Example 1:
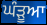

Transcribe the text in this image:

ਘੰੜੂਆ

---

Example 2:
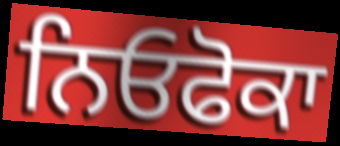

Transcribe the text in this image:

ਨਿਓਫੋਕਾ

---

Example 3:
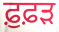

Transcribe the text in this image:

ਫ਼ੁਫ਼ੜ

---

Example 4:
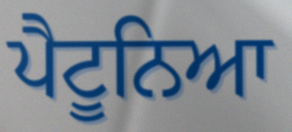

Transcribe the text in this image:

ਪੈਟੂਨਿਆ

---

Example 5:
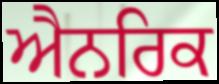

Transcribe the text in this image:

ਐਨਰਿਕ